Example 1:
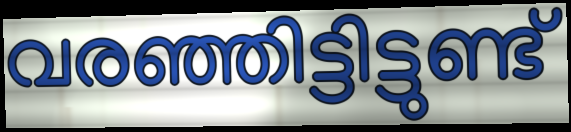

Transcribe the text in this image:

വരഞ്ഞിട്ടിട്ടുണ്ട്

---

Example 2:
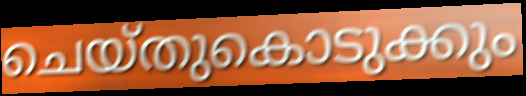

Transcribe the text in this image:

ചെയ്തുകൊടുക്കും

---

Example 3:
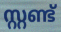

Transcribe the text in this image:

സ്റ്റണ്ട്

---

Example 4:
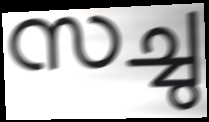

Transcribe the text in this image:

സച്ചു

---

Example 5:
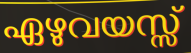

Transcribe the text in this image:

ഏഴുവയസ്സ്